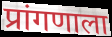
प्रांगणाला